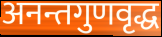
अनन्तगुणवृद्ध